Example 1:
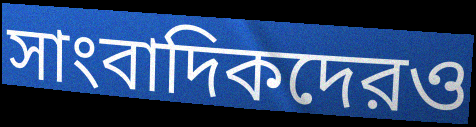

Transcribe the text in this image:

সাংবাদিকদেরও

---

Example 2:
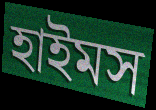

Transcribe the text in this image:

হাইমস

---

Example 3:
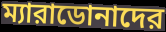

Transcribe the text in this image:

ম্যারাডোনাদের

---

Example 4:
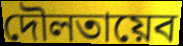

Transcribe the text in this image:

দৌলতায়েব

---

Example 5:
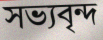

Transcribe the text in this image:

সভ্যবৃন্দ